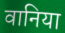
वानिया